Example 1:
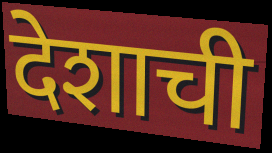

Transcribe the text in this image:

देशाची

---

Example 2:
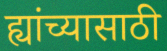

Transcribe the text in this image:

ह्यांच्यासाठी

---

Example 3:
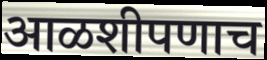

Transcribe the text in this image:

आळशीपणाच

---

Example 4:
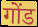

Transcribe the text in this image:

गोंड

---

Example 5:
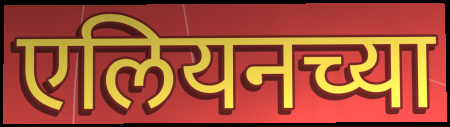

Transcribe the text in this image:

एलियनच्या